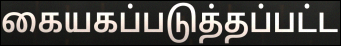
கையகப்படுத்தப்பட்ட